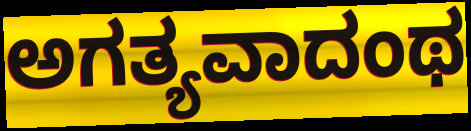
ಅಗತ್ಯವಾದಂಥ